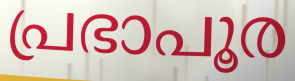
പ്രഭാപൂര